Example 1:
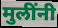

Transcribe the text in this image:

मुलींनी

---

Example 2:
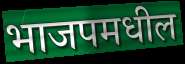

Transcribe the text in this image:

भाजपमधील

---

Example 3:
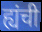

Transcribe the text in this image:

ह्यंची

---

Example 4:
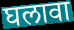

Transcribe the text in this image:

घलावा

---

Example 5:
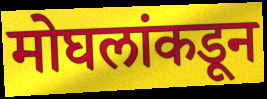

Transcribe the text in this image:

मोघलांकडून